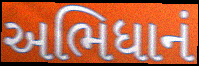
અભિધાનં